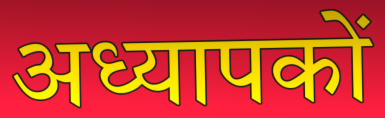
अध्यापकों